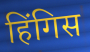
हिंगिस